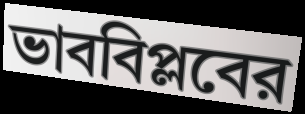
ভাববিপ্লবের